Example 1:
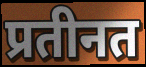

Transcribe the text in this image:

प्रतीनत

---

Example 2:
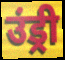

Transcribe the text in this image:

उंड्री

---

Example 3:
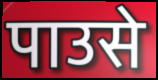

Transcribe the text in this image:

पाउसे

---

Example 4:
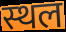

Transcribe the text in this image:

स्‍थल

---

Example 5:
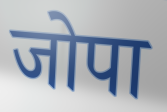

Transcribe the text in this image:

जोपा